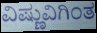
ವಿಷ್ಣುವಿಗಿಂತ